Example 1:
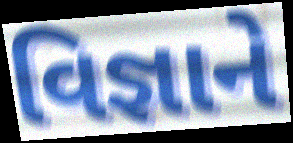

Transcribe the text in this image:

વિજ્ઞાને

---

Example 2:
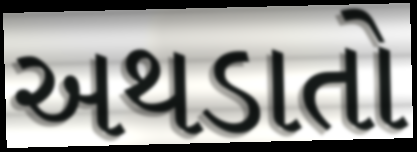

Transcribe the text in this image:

અથડાતો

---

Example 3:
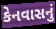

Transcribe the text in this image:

કેનવાસનું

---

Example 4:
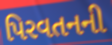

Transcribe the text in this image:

પિરવતનની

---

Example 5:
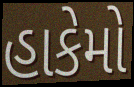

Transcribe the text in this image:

હાકેમો